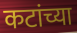
कटांच्या